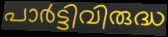
പാർട്ടിവിരുദ്ധ